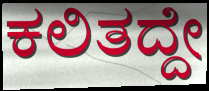
ಕಲಿತದ್ದೇ